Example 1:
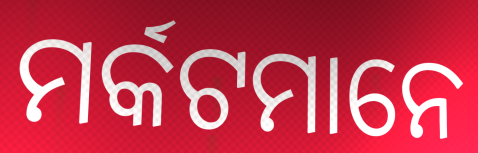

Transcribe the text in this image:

ମର୍କଟମାନେ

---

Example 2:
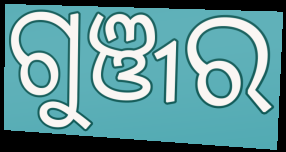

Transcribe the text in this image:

ଗୁଞ୍ଜର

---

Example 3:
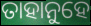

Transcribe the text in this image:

ତାହାନୁହେ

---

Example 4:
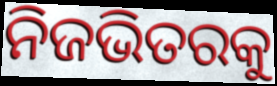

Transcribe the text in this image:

ନିଜଭିତରକୁ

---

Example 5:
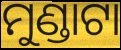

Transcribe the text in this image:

ମୁଣ୍ଡାଟା